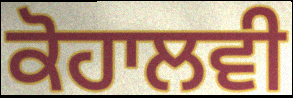
ਕੋਹਾਲਵੀ